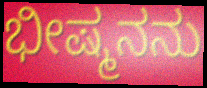
ಭೀಷ್ಮನನು